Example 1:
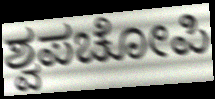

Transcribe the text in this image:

ಶ್ವಪಚೋಪಿ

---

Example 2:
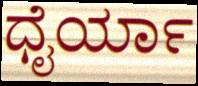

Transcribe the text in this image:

ಧೈರ್ಯಾ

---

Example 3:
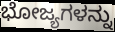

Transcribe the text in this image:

ಭೋಜ್ಯಗಳನ್ನು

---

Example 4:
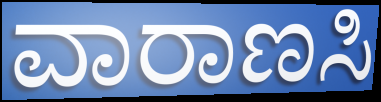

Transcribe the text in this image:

ವಾರಾಣಸಿ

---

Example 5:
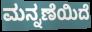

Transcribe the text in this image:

ಮನ್ನಣೆಯಿದೆ